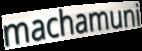
machamuni